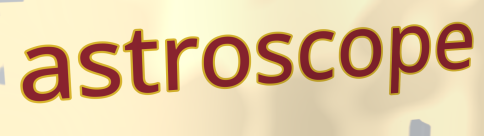
astroscope